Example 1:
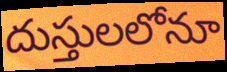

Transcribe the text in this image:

దుస్తులలోనూ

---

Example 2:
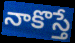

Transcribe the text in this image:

నాకొస్తే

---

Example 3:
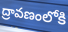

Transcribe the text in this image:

ద్రావణంలోకి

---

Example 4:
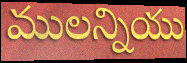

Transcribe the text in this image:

ములన్నియు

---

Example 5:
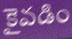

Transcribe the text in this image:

కైవడిం